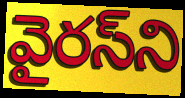
వైరస్‌ని